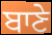
ਬਾਣੇ